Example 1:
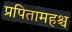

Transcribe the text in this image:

प्रपितामहश्च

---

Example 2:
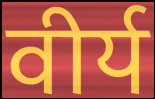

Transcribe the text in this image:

वीर्य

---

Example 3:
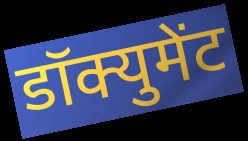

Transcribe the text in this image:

डॉक्युमेंट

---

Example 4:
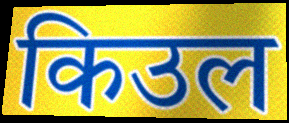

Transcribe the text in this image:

किउल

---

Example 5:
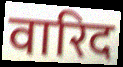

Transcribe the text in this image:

वारिद